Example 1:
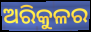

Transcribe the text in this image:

ଅରିକୁଳର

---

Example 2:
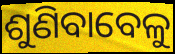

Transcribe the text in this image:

ଶୁଣିବାବେଳୁ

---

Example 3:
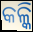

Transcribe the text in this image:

କଳ୍କି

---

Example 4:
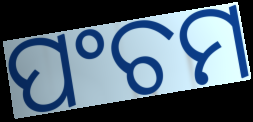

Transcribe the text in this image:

ପଂଚମ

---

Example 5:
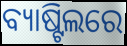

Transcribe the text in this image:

ବ୍ୟାଷ୍ଟିଲରେ